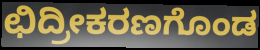
ಛಿದ್ರೀಕರಣಗೊಂಡ